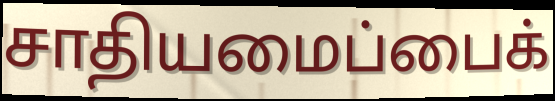
சாதியமைப்பைக்